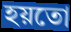
হয়তো